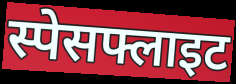
स्पेसफ्लाइट